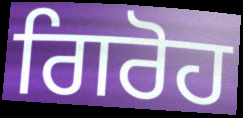
ਗਿਰੋਹ